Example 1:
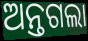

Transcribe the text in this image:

ଅନ୍ତଗଲା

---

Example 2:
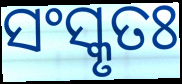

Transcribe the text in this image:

ସଂସ୍କୃତଃ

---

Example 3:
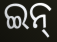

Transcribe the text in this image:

ଇନ୍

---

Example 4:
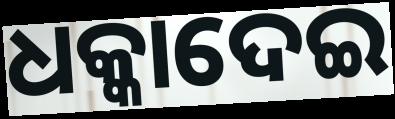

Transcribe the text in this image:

ଧକ୍କାଦେଇ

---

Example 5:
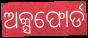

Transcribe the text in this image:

ଅକ୍ସଫୋର୍ଡ